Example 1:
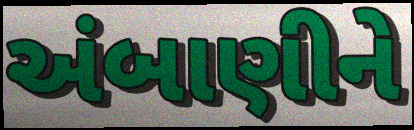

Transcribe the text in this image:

અંબાણીને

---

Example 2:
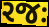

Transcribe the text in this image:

રજઃ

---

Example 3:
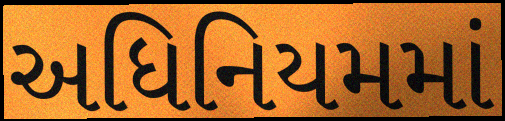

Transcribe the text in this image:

અધિનિયમમાં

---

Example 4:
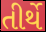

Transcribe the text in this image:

તીર્થે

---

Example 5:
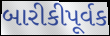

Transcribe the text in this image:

બારીકીપૂર્વક